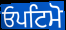
ਓਪਟਿਮੋ